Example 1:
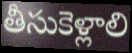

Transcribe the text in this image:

తీసుకెళ్లాలి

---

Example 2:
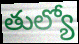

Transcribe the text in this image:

తుల్యో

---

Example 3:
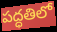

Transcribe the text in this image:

పద్ధతిలో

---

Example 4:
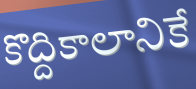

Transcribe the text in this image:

కొద్దికాలానికే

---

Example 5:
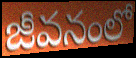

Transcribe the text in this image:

జీవనంలో